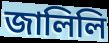
জালিলি